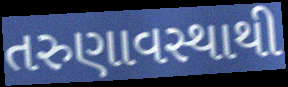
તરુણાવસ્થાથી